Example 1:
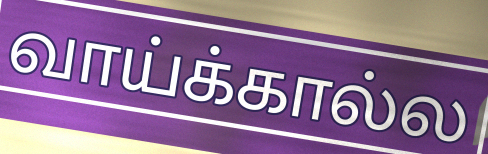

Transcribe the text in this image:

வாய்க்கால்ல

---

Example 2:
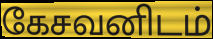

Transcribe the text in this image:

கேசவனிடம்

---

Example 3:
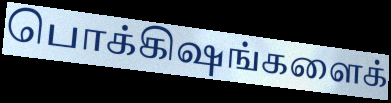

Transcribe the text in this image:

பொக்கிஷங்களைக்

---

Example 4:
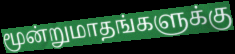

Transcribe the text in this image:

மூன்றுமாதங்களுக்கு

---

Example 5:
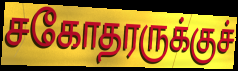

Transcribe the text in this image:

சகோதரருக்குச்